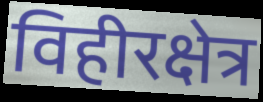
विहीरक्षेत्र